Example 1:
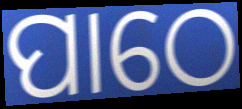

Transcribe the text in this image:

ପାଠେ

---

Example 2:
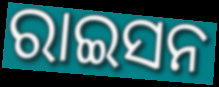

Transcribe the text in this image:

ରାଇସନ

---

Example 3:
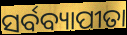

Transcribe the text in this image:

ସର୍ବବ୍ୟାପୀତା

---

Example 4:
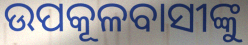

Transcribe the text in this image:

ଉପକୂଳବାସୀଙ୍କୁ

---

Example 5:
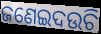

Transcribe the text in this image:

ଜଣେଇଦଉଚି